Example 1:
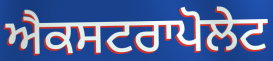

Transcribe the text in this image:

ਐਕਸਟਰਾਪੋਲੇਟ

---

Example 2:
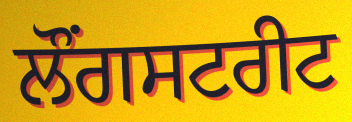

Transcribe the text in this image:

ਲੌਂਗਸਟਰੀਟ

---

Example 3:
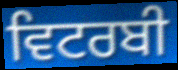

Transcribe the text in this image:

ਵਿਟਰਬੀ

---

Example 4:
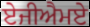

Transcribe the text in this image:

ਏਜੀਐਮਏ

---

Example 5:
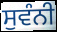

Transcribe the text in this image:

ਸੁਵੰਨੀ